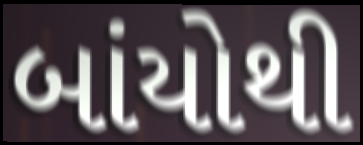
બાંયોથી